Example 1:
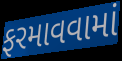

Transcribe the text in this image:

ફરમાવવામાં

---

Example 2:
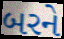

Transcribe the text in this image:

બરને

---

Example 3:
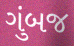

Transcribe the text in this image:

ગુંબજ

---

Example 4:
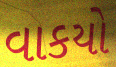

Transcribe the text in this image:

વાકયો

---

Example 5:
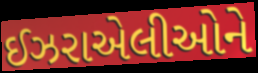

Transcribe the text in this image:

ઈઝરાએલીઓને